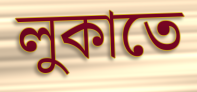
লুকাতে